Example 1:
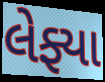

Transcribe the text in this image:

લેફ્યા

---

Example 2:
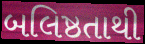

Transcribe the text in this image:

બલિષ્ઠતાથી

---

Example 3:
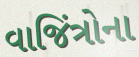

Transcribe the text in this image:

વાજિંત્રોના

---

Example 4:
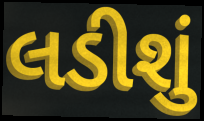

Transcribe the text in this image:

લડીશું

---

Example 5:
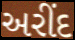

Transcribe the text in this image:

અરીંદ